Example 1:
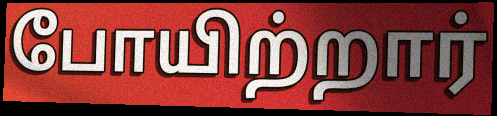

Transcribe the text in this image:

போயிற்றார்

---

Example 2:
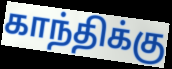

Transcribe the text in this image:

காந்திக்கு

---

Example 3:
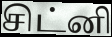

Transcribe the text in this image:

சிட்னி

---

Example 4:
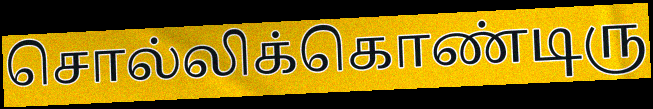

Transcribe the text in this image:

சொல்லிக்கொண்டிரு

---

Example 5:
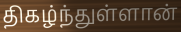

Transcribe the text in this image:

திகழ்ந்துள்ளான்